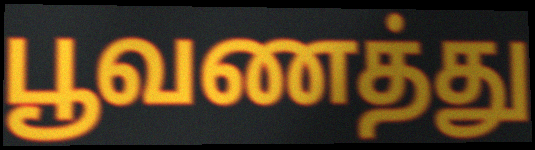
பூவணத்து